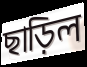
ছাড়িল